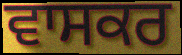
ਵਾਸਕਰ